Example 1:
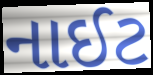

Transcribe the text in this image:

નાઈટ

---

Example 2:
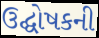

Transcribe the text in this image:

ઉદ્ઘોષકની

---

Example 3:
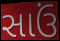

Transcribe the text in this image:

સાઉં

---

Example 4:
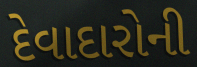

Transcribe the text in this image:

દેવાદારોની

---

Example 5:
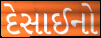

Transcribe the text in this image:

દેસાઈનો